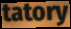
tatory